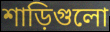
শাড়িগুলো